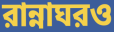
রান্নাঘরও